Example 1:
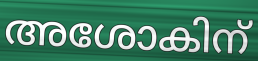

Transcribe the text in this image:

അശോകിന്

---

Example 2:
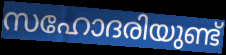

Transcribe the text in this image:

സഹോദരിയുണ്ട്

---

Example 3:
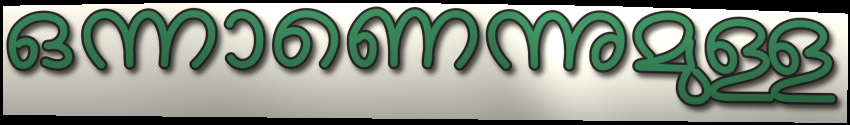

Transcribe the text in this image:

ഒന്നാണെന്നുമുള്ള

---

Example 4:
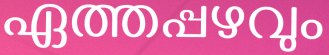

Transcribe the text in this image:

ഏത്തപ്പഴവും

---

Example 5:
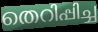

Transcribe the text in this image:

തെറിപ്പിച്ച